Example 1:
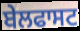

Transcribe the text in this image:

ਬੇਲਫਾਸਟ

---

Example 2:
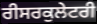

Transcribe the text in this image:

ਰੀਸਰਕੁਲੇਟਰੀ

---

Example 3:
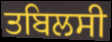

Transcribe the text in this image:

ਤਬਿਲਸੀ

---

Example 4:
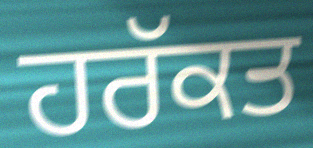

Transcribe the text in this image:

ਹਰੱਕਤ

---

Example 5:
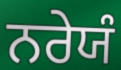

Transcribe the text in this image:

ਨਰੇਯੰ